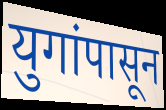
युगांपासून